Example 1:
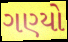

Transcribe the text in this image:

ગણ્યો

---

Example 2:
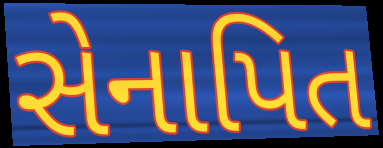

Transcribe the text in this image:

સેનાપિત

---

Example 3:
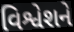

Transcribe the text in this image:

વિશ્વેશને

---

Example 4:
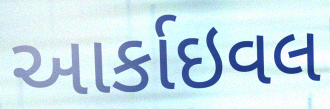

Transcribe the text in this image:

આર્કાઇવલ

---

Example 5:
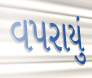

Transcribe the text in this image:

વપરાયું